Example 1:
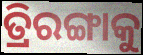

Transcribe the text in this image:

ତ୍ରିରଙ୍ଗାକୁ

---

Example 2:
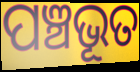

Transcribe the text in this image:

ପଞ୍ଚଭୂତ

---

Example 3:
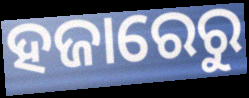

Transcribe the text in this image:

ହଜାରେରୁ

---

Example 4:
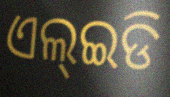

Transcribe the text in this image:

ଏଲ୍ଇଡି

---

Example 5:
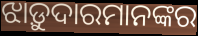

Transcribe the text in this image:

ଝାଡ଼ୁଦାରମାନଙ୍କର